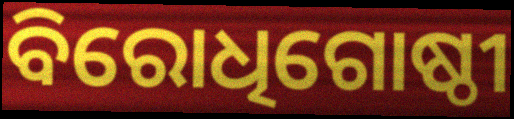
ବିରୋଧିଗୋଷ୍ଠୀ